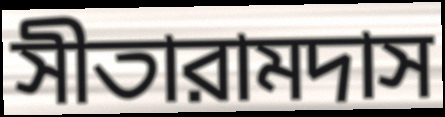
সীতারামদাস